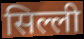
सिल्ली